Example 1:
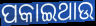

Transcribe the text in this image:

ପକାଇଥାଉ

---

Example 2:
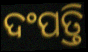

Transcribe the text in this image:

ଦଂପତ୍ତି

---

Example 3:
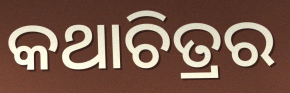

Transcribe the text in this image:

କଥାଚିତ୍ରର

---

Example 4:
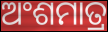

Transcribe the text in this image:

ଅଂଶମାତ୍ର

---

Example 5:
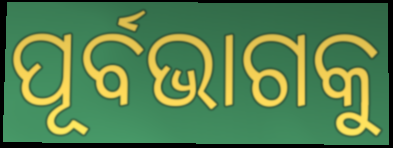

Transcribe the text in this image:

ପୂର୍ବଭାଗକୁ